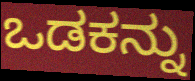
ಒಡಕನ್ನು